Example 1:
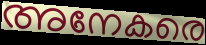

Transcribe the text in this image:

അനേകരെ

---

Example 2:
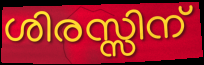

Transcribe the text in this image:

ശിരസ്സിന്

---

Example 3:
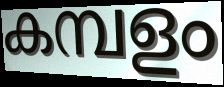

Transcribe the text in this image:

കമ്പളം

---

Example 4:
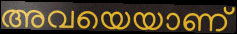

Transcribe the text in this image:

അവയെയാണ്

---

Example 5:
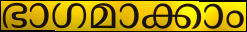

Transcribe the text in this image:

ഭാഗമാക്കാം